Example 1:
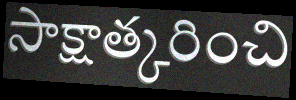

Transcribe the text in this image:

సాక్షాత్కరించి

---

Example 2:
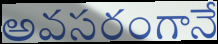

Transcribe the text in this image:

అవసరంగానే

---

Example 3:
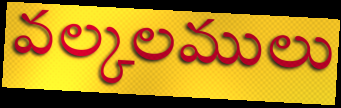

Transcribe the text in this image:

వల్కలములు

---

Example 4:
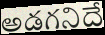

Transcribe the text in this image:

అడగనిదే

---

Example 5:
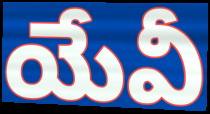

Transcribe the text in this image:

యేవీ